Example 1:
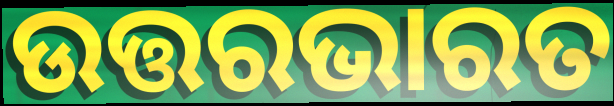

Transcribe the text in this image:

ଉତ୍ତରଭାରତ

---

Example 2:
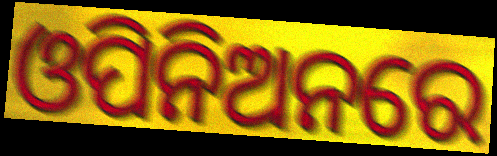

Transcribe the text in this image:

ଓପିନିଅନରେ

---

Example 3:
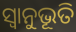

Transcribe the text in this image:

ସ୍ଵାନୁଭୂତି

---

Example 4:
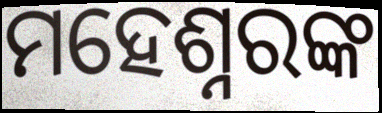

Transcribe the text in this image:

ମହେଶ୍ନରଙ୍କ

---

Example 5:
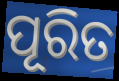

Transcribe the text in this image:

ପୂରିତ